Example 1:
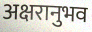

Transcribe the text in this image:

अक्षरानुभव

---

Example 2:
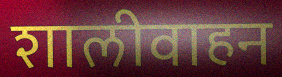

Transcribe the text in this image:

शालीवाहन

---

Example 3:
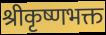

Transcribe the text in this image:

श्रीकृष्णभक्त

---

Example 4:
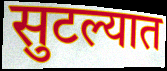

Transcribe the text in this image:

सुटल्यात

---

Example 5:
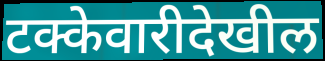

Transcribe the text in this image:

टक्केवारीदेखील